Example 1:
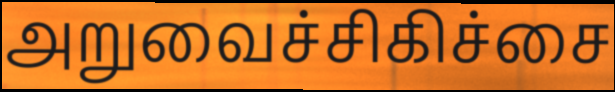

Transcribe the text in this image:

அறுவைச்சிகிச்சை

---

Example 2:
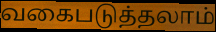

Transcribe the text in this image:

வகைபடுத்தலாம்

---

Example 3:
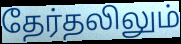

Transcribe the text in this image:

தேர்தலிலும்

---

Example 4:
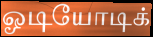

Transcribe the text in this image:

ஓடியோடிக்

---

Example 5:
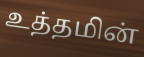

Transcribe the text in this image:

உத்தமின்